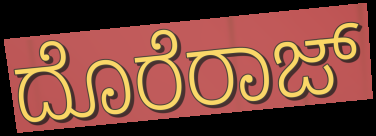
ದೊರೆರಾಜ್